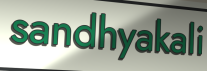
sandhyakali